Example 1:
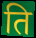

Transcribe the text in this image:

ति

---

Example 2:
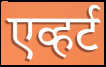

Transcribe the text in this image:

एव्हर्ट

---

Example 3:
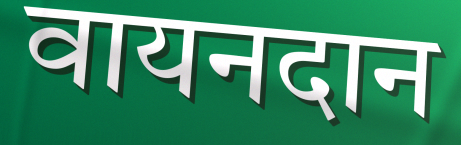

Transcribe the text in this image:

वायनदान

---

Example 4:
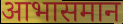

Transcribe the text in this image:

आभासमान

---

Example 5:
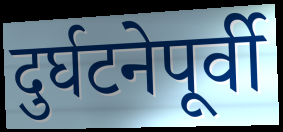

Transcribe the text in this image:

दुर्घटनेपूर्वी